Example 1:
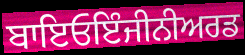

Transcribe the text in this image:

ਬਾਇਓਇੰਜੀਨੀਅਰਡ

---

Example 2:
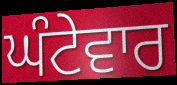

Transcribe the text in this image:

ਘੰਟੇਵਾਰ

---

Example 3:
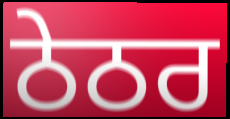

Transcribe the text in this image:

ਠੇਠਰ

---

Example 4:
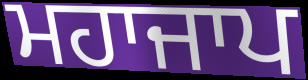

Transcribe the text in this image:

ਮਹਾਜਾਪ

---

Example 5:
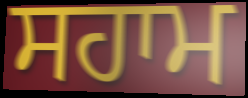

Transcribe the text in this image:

ਸਹਾਮ